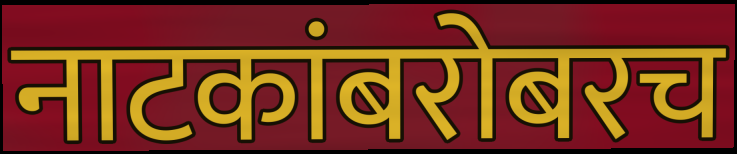
नाटकांबरोबरच